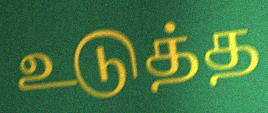
உடுத்த